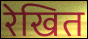
रेखित